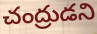
చంద్రుడని